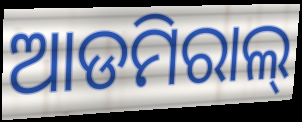
ଆଡମିରାଲ୍